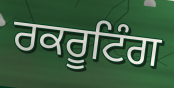
ਰਕਰੂਟਿੰਗ